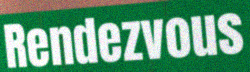
Rendezvous